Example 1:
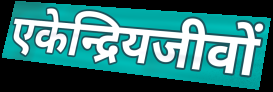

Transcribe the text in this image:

एकेन्द्रियजीवों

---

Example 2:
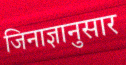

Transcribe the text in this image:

जिनाज्ञानुसार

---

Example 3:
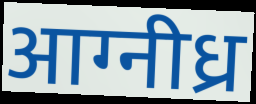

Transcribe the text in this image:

आग्नीध्र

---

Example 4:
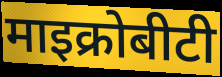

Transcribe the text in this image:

माइक्रोबीटी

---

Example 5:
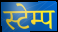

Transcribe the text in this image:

स्टेम्प